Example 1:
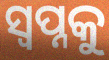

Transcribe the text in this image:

ସ୍ୱପ୍ନକୁ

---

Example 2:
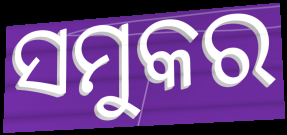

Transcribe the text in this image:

ସମୁକର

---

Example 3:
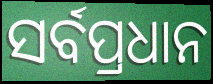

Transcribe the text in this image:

ସର୍ବପ୍ରଧାନ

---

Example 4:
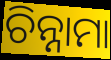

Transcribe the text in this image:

ଚିନ୍ନାମା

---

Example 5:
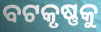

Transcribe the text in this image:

ବଟକୃଷ୍ଣକୁ